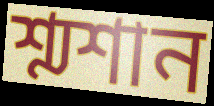
শ্মশান